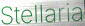
Stellaria